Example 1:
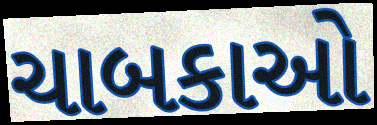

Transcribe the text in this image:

ચાબકાઓ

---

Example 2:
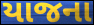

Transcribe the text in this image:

યાજના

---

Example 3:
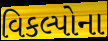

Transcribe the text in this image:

વિકલ્પોના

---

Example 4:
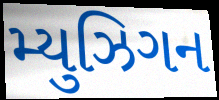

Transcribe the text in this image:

મ્યુઝિગન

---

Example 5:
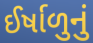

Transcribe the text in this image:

ઈર્ષાળુનું